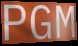
PGM